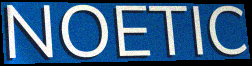
NOETIC